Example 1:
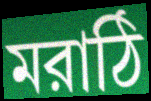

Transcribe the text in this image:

মরাঠি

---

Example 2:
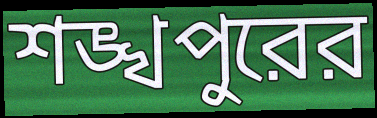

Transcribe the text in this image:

শঙ্খপুরের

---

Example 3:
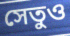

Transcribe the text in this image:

সেতুও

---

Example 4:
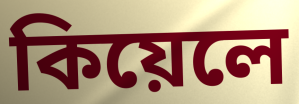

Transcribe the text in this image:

কিয়েলে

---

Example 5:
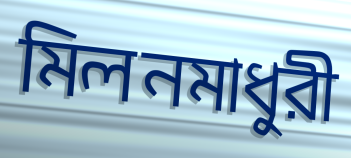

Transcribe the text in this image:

মিলনমাধুরী